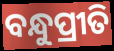
ବନ୍ଧୁପ୍ରୀତି